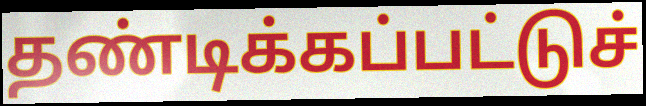
தண்டிக்கப்பட்டுச்